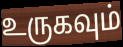
உருகவும்